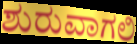
ಶುರುವಾಗಲಿ